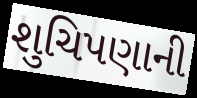
શુચિપણાની